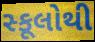
સ્કૂલોથી